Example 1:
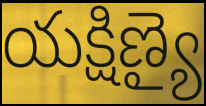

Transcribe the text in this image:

యక్షిణ్యై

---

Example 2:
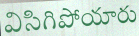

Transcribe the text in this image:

విసిగిపోయారు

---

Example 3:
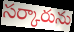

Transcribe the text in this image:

సర్కారును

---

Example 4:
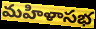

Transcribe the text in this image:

మహిళాసభ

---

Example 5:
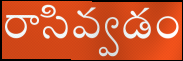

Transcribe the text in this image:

రాసివ్వడం